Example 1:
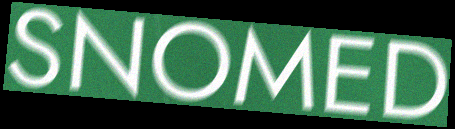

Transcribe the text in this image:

SNOMED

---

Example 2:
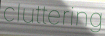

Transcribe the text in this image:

cluttering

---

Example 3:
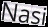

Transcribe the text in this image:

Nasi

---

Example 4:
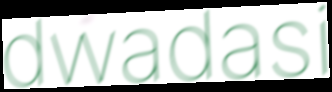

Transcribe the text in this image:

dwadasi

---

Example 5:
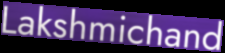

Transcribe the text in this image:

Lakshmichand